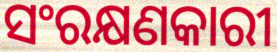
ସଂରକ୍ଷଣକାରୀ